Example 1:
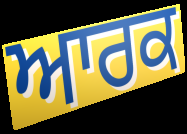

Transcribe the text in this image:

ਆਰਕ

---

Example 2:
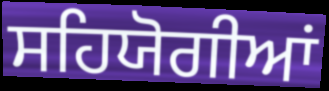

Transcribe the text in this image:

ਸਹਿਯੋਗੀਆਂ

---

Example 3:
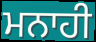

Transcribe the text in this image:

ਮਨਾਹੀ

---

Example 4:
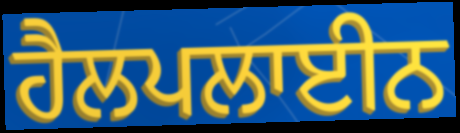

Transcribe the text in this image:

ਹੈਲਪਲਾਈਨ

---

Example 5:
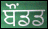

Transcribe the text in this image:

ਬੌਂਡਡ